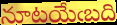
నూటయేఁబది